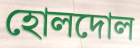
হোলদোল